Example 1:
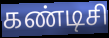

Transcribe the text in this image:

கண்டிசி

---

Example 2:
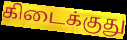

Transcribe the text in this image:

கிடைக்குது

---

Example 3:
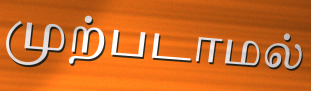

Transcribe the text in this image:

முற்படாமல்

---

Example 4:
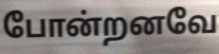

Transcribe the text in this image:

போன்றனவே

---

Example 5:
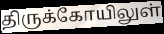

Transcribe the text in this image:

திருக்கோயிலுள்